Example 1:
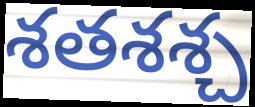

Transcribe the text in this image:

శతశశ్చ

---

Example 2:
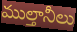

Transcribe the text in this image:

ముల్తానీలు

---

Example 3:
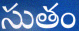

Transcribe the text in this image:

సుతం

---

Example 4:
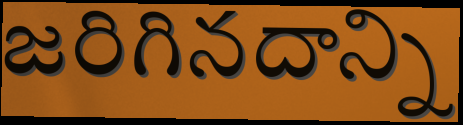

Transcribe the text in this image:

జరిగినదాన్ని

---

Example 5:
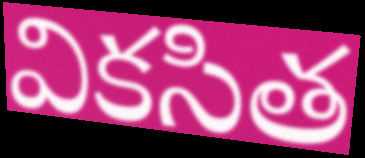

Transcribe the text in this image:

వికసిత